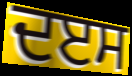
ਦੲਸ